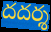
దదర్శ